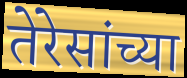
तेरेसांच्या